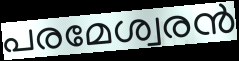
പരമേശ്വരൻ